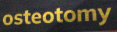
osteotomy